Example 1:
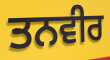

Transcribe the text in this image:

ਤਨਵੀਰ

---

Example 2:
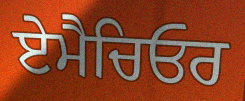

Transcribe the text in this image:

ਏਮੈਚਿਓਰ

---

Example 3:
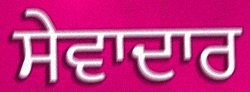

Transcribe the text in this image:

ਸੇਵਾਦਾਰ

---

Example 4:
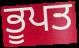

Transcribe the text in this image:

ਭੂਪਤ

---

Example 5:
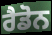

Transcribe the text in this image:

ਰੈਡੋਨ